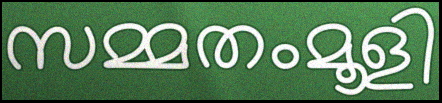
സമ്മതംമൂളി